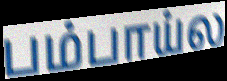
பம்பாய்ல